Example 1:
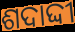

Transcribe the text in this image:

ଶଦାଦ୍ଦୀ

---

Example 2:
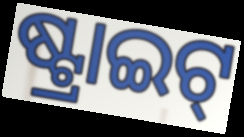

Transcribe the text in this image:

ଷ୍ଟ୍ରାଇଟ୍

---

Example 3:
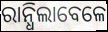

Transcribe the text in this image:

ରାନ୍ଧିଲାବେଳେ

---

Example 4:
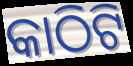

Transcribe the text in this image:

କାଠିଟି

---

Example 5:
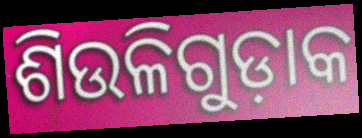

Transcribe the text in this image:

ଶିଉଳିଗୁଡ଼ାକ